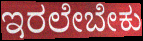
ಇರಲೇಬೇಕು